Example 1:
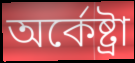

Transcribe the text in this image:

অর্কেষ্ট্রা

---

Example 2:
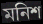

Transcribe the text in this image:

মনিশ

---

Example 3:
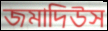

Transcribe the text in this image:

জমাদিউস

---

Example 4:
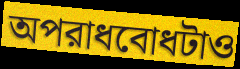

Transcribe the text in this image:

অপরাধবোধটাও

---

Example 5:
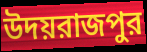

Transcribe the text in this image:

উদয়রাজপুর